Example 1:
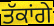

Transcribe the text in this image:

ਤੱਕਾਂਗੇ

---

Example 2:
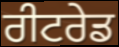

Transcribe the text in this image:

ਰੀਟਰੇਡ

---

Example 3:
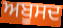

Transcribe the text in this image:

ਅਬੂਸਦ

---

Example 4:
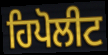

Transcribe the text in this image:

ਹਿਪੋਲੀਟ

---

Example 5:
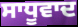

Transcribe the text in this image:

ਸਾਧੂਵਾਦ